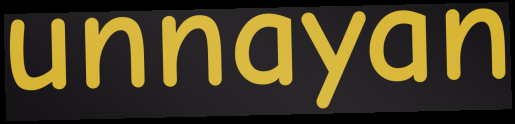
unnayan